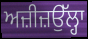
ਅਜ਼ੀਜ਼ਉੱਲ੍ਹਾ